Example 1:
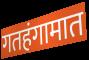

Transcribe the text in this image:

गतहंगामात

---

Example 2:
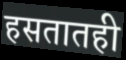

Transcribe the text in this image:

हसतातही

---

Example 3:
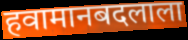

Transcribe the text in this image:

हवामानबदलाला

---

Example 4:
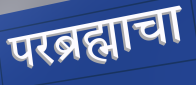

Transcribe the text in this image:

परब्रह्माचा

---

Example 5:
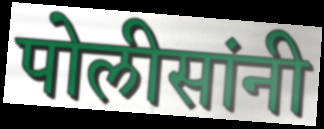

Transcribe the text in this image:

पोलीसांनी